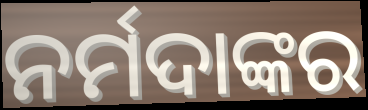
ନର୍ମଦାଙ୍କର